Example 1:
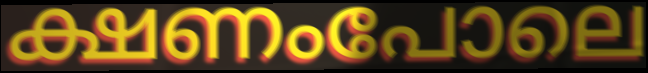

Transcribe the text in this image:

ക്ഷണംപോലെ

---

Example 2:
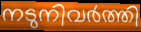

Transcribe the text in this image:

നടുനിവർത്തി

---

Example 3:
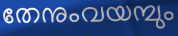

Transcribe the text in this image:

തേനുംവയമ്പും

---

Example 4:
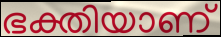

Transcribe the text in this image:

ഭക്തിയാണ്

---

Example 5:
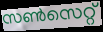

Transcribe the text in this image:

സൺസെറ്റ്